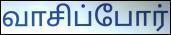
வாசிப்போர்